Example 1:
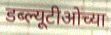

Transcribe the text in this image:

डब्ल्यूटीओच्या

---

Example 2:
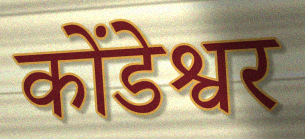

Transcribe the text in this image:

कोंडेश्वर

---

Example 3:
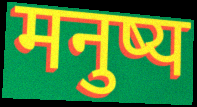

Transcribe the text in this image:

मनुष्य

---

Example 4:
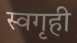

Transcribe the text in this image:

स्वगृही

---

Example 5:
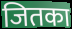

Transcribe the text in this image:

जितका